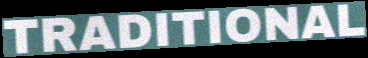
TRADITIONAL